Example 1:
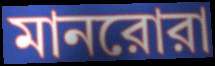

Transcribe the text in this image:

মানরোরা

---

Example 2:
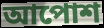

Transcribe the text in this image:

আপোশ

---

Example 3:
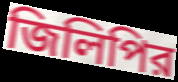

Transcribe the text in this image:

জিলিপির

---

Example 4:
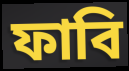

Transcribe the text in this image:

ফাবি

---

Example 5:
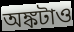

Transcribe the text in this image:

অঙ্কটাও